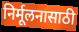
निर्मूलनासाठी